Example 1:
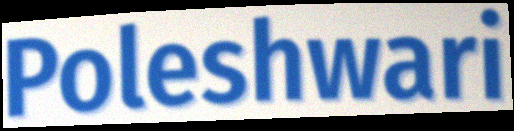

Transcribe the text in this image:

Poleshwari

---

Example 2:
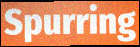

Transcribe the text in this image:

Spurring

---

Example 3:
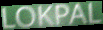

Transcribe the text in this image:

LOKPAL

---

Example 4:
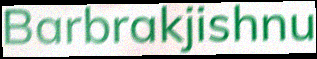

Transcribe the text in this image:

Barbrakjishnu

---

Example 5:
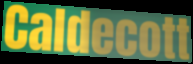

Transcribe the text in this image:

Caldecott